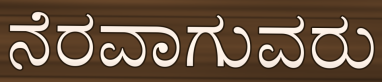
ನೆರವಾಗುವರು